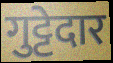
गुट्टेदार